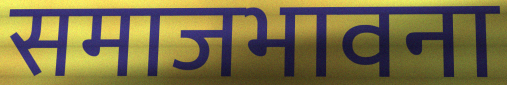
समाजभावना